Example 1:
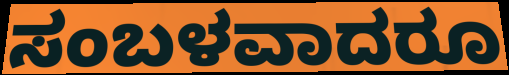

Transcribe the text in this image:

ಸಂಬಳವಾದರೂ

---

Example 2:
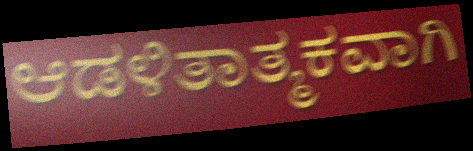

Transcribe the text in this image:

ಆಡಳಿತಾತ್ಮಕವಾಗಿ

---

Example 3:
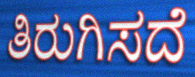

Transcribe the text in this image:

ತಿರುಗಿಸದೆ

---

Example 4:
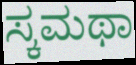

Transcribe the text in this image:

ಸ್ಕಮಥಾ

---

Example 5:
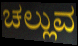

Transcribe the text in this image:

ಚಲ್ಲುವ